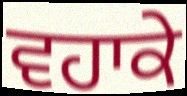
ਵਹਾਕੇ